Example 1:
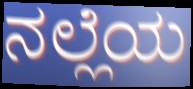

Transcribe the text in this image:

ನಲ್ಲೆಯ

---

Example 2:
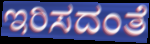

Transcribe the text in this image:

ಇರಿಸದಂತೆ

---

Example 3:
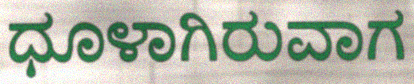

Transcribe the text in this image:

ಧೂಳಾಗಿರುವಾಗ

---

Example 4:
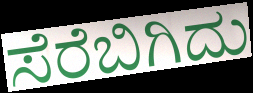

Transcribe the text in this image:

ಸೆರೆಬಿಗಿದು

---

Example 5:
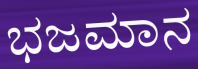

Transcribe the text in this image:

ಭಜಮಾನ